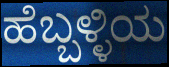
ಹೆಬ್ಬಳ್ಳಿಯ